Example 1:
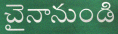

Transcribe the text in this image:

చైనానుండి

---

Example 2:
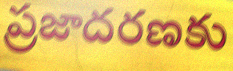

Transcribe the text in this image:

ప్రజాదరణకు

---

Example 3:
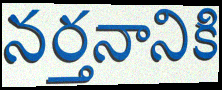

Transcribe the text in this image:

నర్తనానికి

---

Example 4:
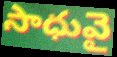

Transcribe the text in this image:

సాధువై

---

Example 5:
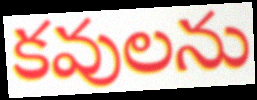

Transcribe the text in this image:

కవులను